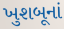
ખુશબૂનાં